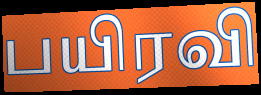
பயிரவி